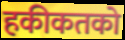
हकीकतको